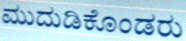
ಮುದುಡಿಕೊಂಡರು